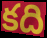
కది